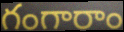
గంగారాం